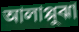
আলাপ্পুঝা